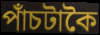
পাঁচটাকৈ